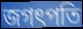
জগৎপতি